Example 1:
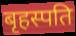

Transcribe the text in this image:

बृहस्पति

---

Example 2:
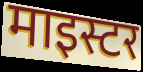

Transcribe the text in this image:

माइस्टर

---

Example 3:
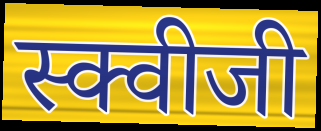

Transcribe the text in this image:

स्क्वीजी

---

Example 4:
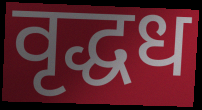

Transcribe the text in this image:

वृद्धध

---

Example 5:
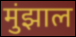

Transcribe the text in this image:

मुंझाल